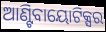
ଆଣ୍ଟିବାୟୋଟିକ୍ସର